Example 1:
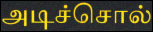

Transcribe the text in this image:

அடிச்சொல்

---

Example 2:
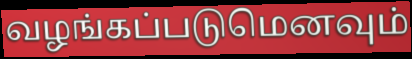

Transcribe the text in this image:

வழங்கப்படுமெனவும்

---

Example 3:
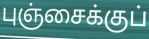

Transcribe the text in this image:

புஞ்சைக்குப்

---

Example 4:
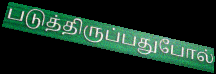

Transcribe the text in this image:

படுத்திருப்பதுபோல்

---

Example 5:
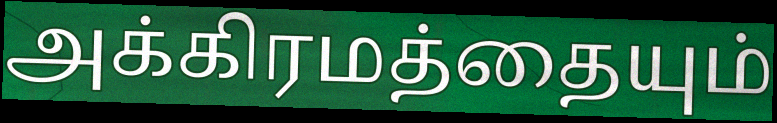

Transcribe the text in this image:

அக்கிரமத்தையும்